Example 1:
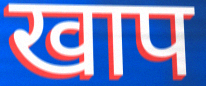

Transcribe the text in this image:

खाप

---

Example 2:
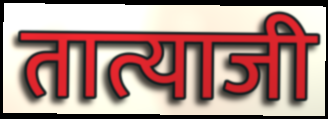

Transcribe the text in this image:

तात्याजी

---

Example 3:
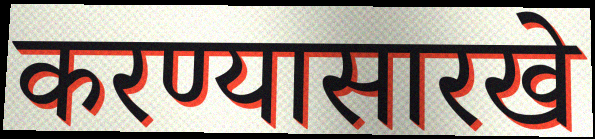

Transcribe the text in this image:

करण्यासारखे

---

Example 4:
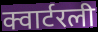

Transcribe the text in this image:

क्वार्टरली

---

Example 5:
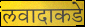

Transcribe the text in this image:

लवादाकडे